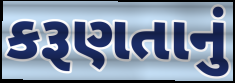
કરૂણતાનું